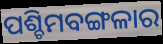
ପଶ୍ଚିମବଙ୍ଗଳାର